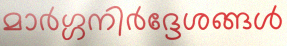
മാർഗ്ഗനിർദ്ദേശങ്ങൾ